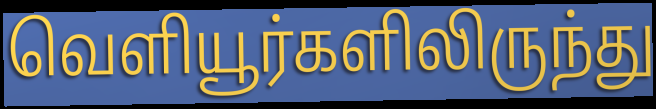
வெளியூர்களிலிருந்து